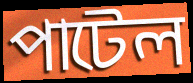
পাটেল